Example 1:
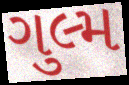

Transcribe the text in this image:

ગુલ્મ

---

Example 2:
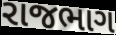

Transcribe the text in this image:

રાજભાગ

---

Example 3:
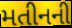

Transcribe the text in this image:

મતીનની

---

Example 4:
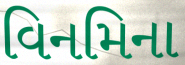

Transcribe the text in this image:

વિનમિના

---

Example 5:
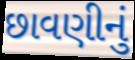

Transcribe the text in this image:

છાવણીનું